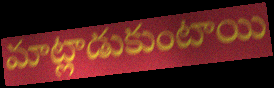
మాట్లాడుకుంటాయి